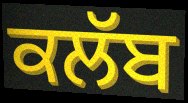
ਕਲੱਬ